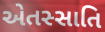
એતસ્સાતિ